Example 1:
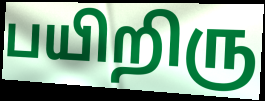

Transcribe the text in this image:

பயிறிரு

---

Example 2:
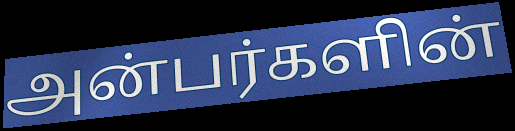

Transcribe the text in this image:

அன்பர்களின்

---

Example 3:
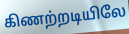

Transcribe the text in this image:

கிணற்றடியிலே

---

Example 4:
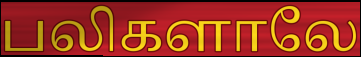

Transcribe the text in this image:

பலிகளாலே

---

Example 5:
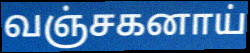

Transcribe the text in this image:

வஞ்சகனாய்